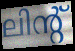
ലിന്റ്